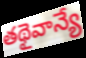
తథైవాన్యే